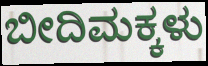
ಬೀದಿಮಕ್ಕಳು